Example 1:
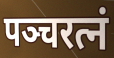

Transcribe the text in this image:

पञ्चरत्नं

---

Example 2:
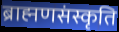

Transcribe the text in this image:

ब्राह्मणसंस्कृति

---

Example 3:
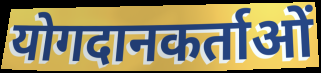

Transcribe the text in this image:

योगदानकर्ताओं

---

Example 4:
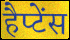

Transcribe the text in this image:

हैप्टेंस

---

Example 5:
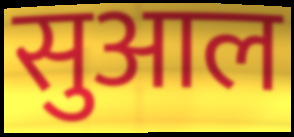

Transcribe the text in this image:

सुआल